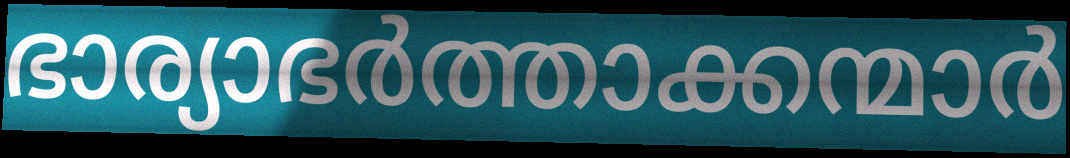
ഭാര്യാഭർത്താക്കന്മാർ